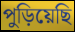
পুড়িয়েছি